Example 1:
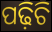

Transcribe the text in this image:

ପଢ଼ିଚି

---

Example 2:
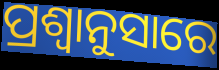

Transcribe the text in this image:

ପ୍ରଶ୍ବାନୁସାରେ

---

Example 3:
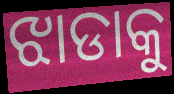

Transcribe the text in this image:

ଝାଡାକୁ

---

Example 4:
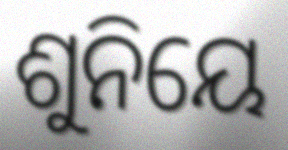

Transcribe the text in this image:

ଶୁନିୟେ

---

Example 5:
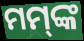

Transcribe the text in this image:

ମମ୍‍ଙ୍କ